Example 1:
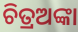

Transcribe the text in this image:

ଚିତ୍ରଅଙ୍କା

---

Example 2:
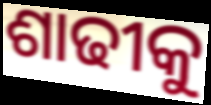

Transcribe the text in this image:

ଶାଢୀକୁ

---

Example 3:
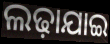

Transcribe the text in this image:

ଲଢ଼ାଯାଇ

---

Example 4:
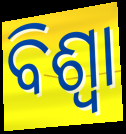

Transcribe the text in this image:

ବିଶ୍ବା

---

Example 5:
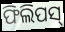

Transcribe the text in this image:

ଫିଲିପସ୍